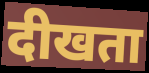
दीखता